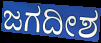
ಜಗದೀಶ